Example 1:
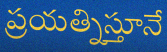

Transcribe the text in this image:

ప్రయత్నిస్తూనే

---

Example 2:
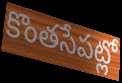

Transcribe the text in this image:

కొంతసేపట్లో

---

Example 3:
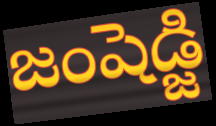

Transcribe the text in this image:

జంషెడ్జి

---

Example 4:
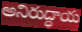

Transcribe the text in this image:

అనిరుద్ధాయ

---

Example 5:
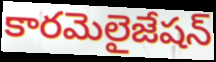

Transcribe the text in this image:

కారమెలైజేషన్